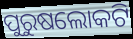
ପୁରୁଷଲୋକଟି